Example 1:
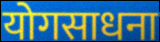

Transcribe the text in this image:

योगसाधना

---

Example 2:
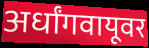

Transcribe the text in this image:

अर्धांगवायूवर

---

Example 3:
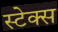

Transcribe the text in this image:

स्टेक्स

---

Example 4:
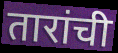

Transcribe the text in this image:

तारांची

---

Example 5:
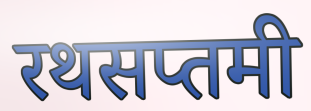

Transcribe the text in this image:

रथसप्तमी